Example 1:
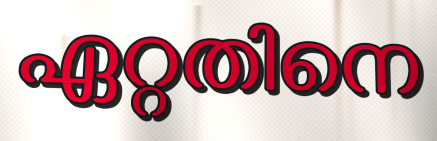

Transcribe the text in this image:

ഏറ്റതിനെ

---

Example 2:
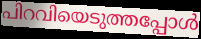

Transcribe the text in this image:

പിറവിയെടുത്തപ്പോൾ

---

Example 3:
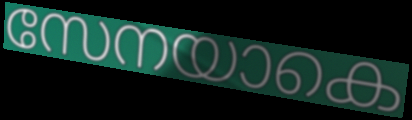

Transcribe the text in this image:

സേനയാകെ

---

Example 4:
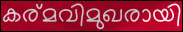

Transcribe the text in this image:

കര്മവിമുഖരായി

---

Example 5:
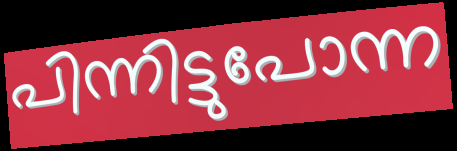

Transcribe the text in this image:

പിന്നിട്ടുപോന്ന